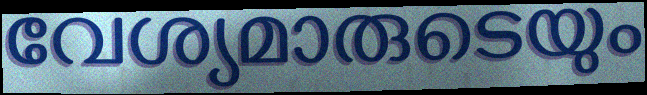
വേശ്യമാരുടെയും